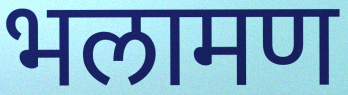
भलामण